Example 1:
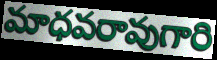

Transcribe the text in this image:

మాధవరావుగారి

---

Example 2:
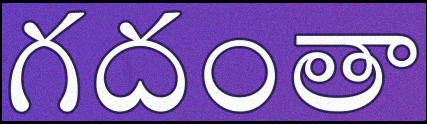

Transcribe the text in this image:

గదంతా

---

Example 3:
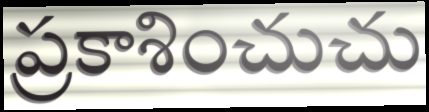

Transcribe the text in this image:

ప్రకాశించుచు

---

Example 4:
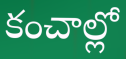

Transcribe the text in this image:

కంచాల్లో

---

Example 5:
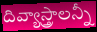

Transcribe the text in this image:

దివ్యాస్త్రాలన్నీ